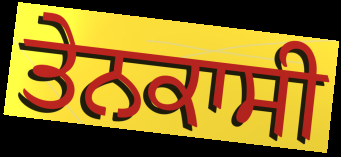
ਤੇਨਕਾਸੀ